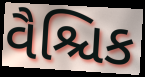
વૈશ્ચિક